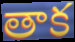
తాక